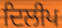
ਦਿਲੀਪ